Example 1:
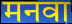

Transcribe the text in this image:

मनवा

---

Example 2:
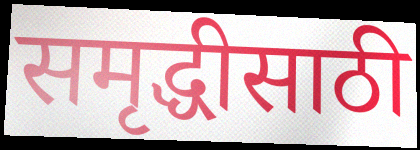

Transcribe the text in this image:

समृद्धीसाठी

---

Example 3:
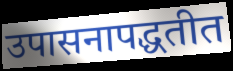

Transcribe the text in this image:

उपासनापद्धतीत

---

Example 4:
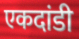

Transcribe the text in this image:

एकदांडी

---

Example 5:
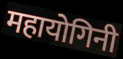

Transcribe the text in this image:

महायोगिनी